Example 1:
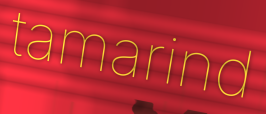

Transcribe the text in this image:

tamarind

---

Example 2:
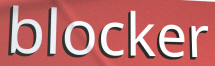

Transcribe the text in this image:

blocker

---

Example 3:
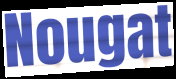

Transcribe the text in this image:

Nougat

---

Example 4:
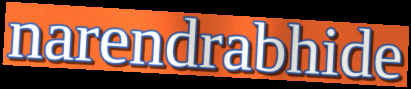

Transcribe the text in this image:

narendrabhide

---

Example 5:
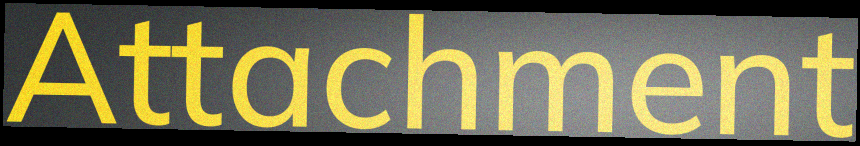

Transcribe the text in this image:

Attachment